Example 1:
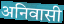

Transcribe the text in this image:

अनिवासी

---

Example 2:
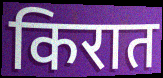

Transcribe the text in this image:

किरात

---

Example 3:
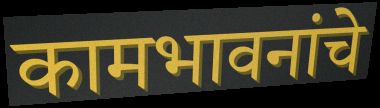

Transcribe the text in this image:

कामभावनांचे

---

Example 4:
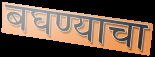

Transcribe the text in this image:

बघण्याचा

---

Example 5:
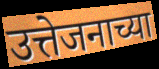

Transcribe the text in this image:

उत्तेजनाच्या